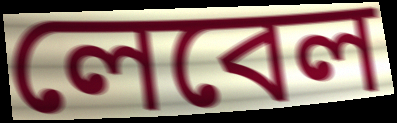
লেবেল